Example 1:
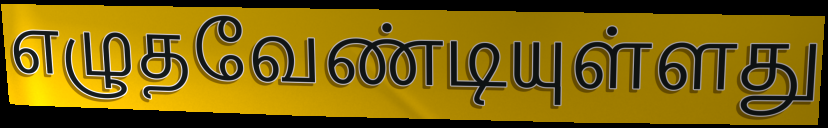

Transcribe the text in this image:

எழுதவேண்டியுள்ளது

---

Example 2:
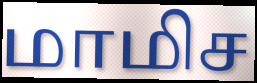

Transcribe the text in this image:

மாமிச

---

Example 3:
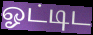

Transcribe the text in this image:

ஓட்டிட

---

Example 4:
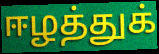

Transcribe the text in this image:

ஈழத்துக்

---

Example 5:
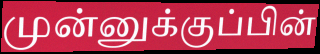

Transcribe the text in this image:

முன்னுக்குப்பின்